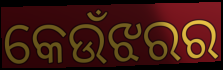
କେଉଁଝରର